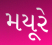
મયૂરે